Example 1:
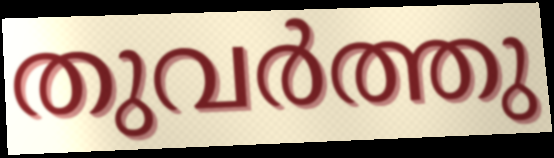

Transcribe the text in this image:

തുവർത്തു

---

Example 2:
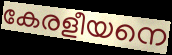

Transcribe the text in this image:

കേരളീയനെ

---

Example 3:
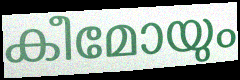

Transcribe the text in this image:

കീമോയും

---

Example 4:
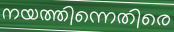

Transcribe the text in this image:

നയത്തിന്നെതിരെ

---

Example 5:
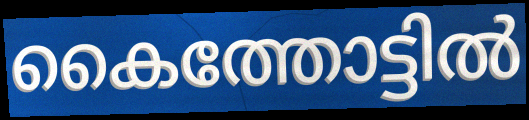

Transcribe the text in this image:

കൈത്തോട്ടിൽ